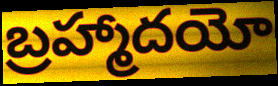
బ్రహ్మాదయో